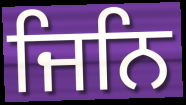
ਜਿਨਿ